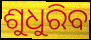
ଶୁଧୁରିବ